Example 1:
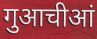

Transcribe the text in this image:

गुआचीआं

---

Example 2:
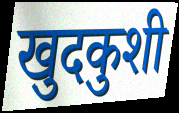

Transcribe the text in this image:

खुदकुशी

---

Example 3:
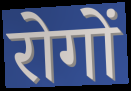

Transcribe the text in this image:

रोगों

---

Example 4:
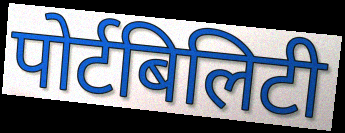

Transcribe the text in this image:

पोर्टबिलिटी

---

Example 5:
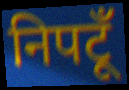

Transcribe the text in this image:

निपटूँ